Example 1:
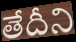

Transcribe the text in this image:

తేదీని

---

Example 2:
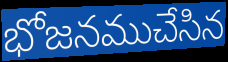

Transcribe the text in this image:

భోజనముచేసిన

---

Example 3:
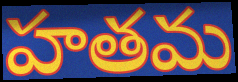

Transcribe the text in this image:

హతమ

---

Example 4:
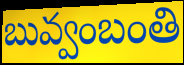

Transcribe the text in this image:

బువ్వంబంతి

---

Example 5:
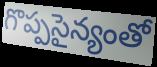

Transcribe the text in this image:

గొప్పసైన్యంతో